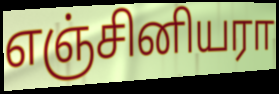
எஞ்சினியரா